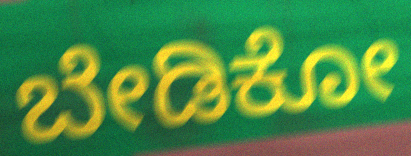
ಬೇಡಿಕೋ